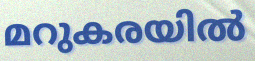
മറുകരയിൽ